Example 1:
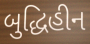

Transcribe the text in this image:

બુદ્ધિહીન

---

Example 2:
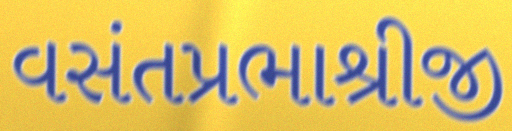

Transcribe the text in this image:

વસંતપ્રભાશ્રીજી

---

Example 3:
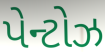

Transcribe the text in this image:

પેન્ટોઝ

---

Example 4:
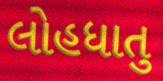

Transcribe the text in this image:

લોહધાતુ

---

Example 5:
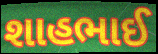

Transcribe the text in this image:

શાહભાઈ